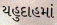
યહુદાહમાં